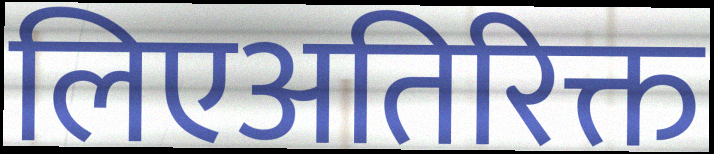
लिएअतिरिक्त